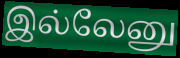
இல்லேனு